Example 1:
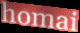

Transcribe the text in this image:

homai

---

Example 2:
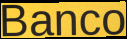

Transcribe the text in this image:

Banco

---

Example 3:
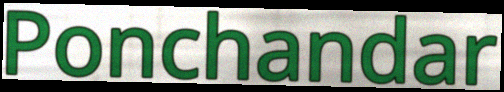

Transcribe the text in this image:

Ponchandar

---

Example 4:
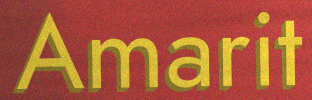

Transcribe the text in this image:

Amarit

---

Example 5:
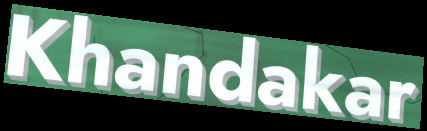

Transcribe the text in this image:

Khandakar